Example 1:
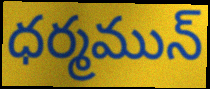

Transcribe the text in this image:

ధర్మమున్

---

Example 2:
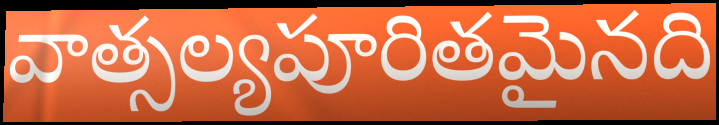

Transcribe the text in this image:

వాత్సల్యపూరితమైనది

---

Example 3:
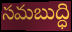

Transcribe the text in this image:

సమబుద్ధి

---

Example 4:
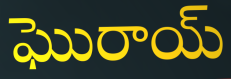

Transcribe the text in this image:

ఘొరాయ్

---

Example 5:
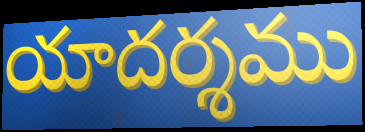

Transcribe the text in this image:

యాదర్శము